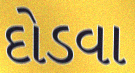
દોડવા